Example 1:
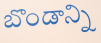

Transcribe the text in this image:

బొండాన్ని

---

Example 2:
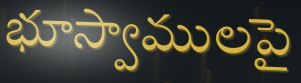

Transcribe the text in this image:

భూస్వాములపై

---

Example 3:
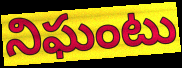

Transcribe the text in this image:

నిఘంటు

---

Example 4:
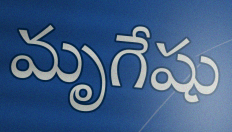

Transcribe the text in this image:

మృగేషు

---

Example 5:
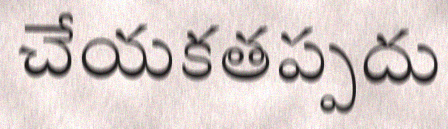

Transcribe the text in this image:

చేయకతప్పదు